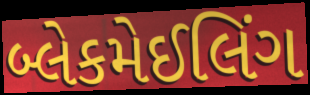
બ્લેકમેઈલિંગ